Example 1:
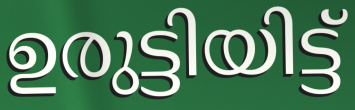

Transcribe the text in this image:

ഉരുട്ടിയിട്ട്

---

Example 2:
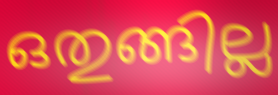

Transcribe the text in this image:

ഒതുങ്ങില്ല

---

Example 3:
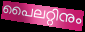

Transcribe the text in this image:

പൈലറ്റിനും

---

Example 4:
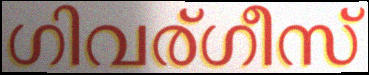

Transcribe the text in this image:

ഗിവര്ഗീസ്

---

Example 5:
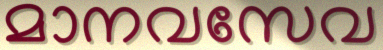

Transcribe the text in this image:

മാനവസേവ